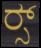
ರ್‍ಸ್